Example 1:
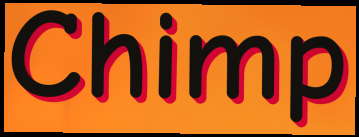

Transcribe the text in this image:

Chimp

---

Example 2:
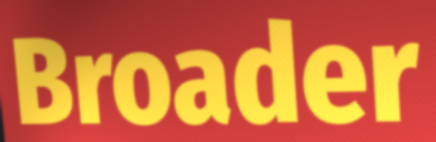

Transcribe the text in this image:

Broader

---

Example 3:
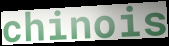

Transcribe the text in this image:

chinois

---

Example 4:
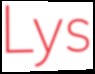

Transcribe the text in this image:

Lys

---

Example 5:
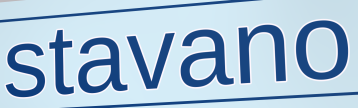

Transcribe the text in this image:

stavano